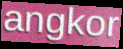
angkor